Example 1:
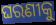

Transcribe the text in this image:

ଘରଣୀକୁ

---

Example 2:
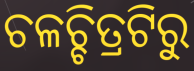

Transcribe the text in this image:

ଚଳଚ୍ଚିତ୍ରଟିରୁ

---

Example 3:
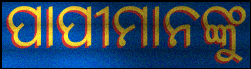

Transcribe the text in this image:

ପାପୀମାନଙ୍କୁ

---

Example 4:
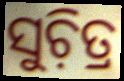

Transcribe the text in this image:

ସୁଚ଼ିତ୍ର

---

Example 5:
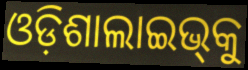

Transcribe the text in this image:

ଓଡ଼ିଶାଲାଇଭ୍‌କୁ